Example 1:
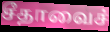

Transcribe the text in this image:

சீதாவைச்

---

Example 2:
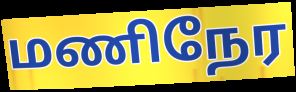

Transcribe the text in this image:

மணிநேர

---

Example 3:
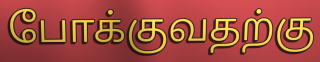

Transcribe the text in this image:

போக்குவதற்கு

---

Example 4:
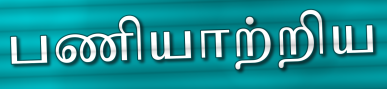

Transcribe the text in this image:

பணியாற்றிய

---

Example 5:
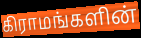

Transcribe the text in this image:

கிராமங்களின்